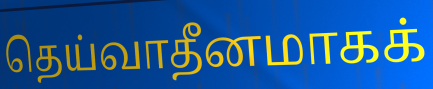
தெய்வாதீனமாகக்